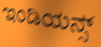
ಇಂಡಿಯನ್ಸ್